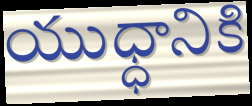
యుధ్ధానికి